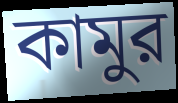
কামুর